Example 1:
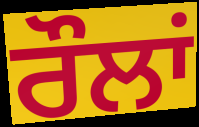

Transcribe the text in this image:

ਰੌਲਾਂ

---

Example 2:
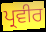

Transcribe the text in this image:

ਪ੍ਰਵੀਰ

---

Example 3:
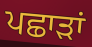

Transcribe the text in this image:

ਪਛਾੜਾਂ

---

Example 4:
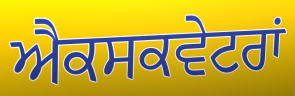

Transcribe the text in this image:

ਐਕਸਕਵੇਟਰਾਂ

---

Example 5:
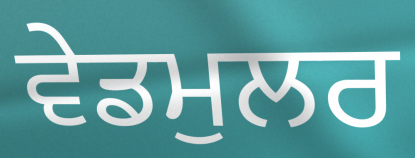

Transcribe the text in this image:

ਵੇਡਮੁਲਰ